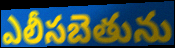
ఎలీసబెతును